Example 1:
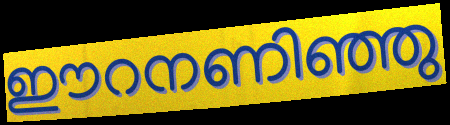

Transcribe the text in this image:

ഈറനണിഞ്ഞു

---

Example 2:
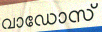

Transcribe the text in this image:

വാഡോസ്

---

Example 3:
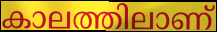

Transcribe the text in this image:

കാലത്തിലാണ്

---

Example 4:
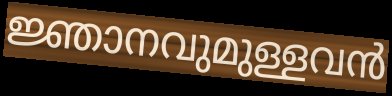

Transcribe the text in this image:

ജ്ഞാനവുമുള്ളവൻ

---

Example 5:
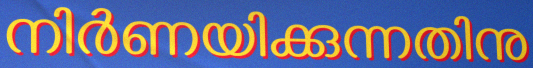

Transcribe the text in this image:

നിർണയിക്കുന്നതിനു